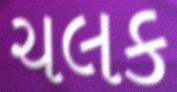
ચલક